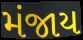
મંજાય